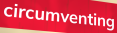
circumventing